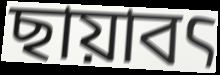
ছায়াবৎ